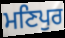
ਮਣਿਪੁਰ